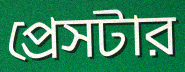
প্রেসটার